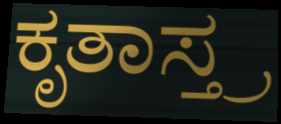
ಕೃತಾಸ್ತ್ರ